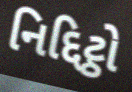
નિદ્દિટ્ઠો